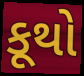
કૂથો